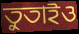
তুতাইও